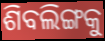
ଶିବଲିଙ୍ଗକୁ